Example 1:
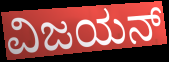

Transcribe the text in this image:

ವಿಜಯನ್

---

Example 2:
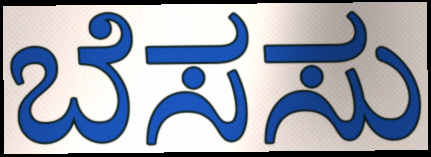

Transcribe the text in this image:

ಬೆಸಸು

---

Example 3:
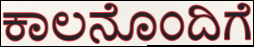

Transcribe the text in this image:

ಕಾಲನೊಂದಿಗೆ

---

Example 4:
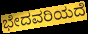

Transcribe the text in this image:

ಭೇದವರಿಯದೆ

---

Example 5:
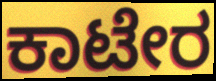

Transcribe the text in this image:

ಕಾಟೇರ